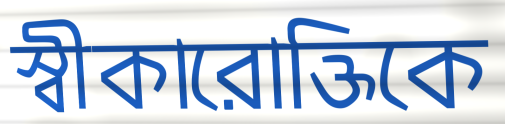
স্বীকারোক্তিকে